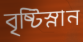
বৃষ্টিস্নান